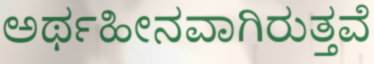
ಅರ್ಥಹೀನವಾಗಿರುತ್ತವೆ